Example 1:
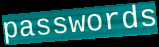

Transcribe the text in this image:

passwords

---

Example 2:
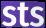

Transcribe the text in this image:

sts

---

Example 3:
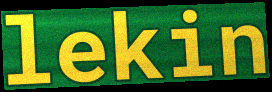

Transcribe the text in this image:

lekin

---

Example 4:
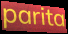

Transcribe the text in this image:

parita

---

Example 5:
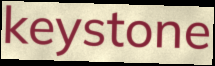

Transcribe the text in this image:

keystone